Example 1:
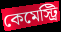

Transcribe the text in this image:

কেমেস্ট্রি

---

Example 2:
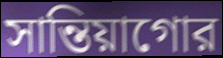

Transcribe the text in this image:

সান্তিয়াগোর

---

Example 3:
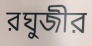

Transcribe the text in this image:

রঘুজীর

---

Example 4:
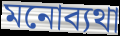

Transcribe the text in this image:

মনোব্যথা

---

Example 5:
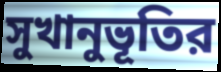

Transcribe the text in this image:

সুখানুভূতির